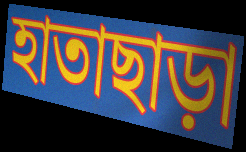
হাতাছাড়া